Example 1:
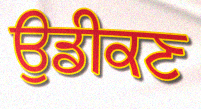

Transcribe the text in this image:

ਉਡੀਕਣ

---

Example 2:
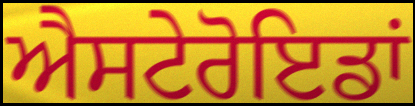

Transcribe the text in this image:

ਐਸਟੇਰੋਇਡਾਂ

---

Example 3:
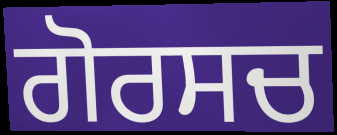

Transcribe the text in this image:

ਗੋਰਸਚ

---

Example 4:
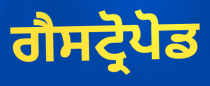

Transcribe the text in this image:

ਗੈਸਟ੍ਰੋਪੋਡ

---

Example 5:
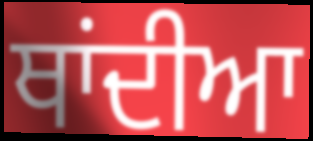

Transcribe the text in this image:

ਥਾਂਦੀਆ